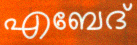
എബേദ്